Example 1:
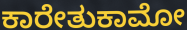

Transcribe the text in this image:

ಕಾರೇತುಕಾಮೋ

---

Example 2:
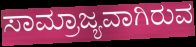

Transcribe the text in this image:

ಸಾಮ್ರಾಜ್ಯವಾಗಿರುವ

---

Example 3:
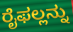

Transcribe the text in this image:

ರೈಫಲ್ಲನ್ನು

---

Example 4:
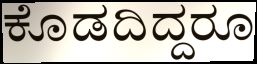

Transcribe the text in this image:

ಕೊಡದಿದ್ದರೂ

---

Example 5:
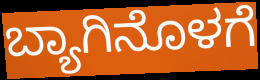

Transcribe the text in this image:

ಬ್ಯಾಗಿನೊಳಗೆ